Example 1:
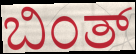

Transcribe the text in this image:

ಬಿಂತ್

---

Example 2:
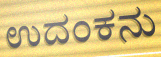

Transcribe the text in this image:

ಉದಂಕನು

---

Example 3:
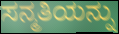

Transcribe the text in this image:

ಸನ್ಮತಿಯನ್ನು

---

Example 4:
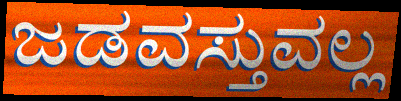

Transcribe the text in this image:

ಜಡವಸ್ತುವಲ್ಲ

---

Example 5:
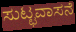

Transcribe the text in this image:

ಸುಟ್ಟವಾಸನೆ